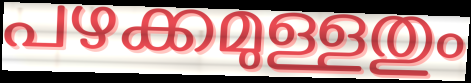
പഴക്കമുള്ളതും